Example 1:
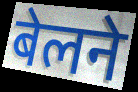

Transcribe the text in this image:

बेलने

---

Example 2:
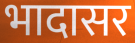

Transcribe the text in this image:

भादासर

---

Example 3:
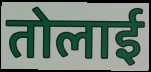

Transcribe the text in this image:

तोलाई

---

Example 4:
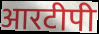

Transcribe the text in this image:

आरटीपी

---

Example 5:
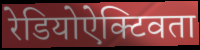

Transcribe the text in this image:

रेडियोऐक्टिवता